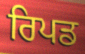
ਰਿਪਡ